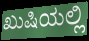
ಖುಷಿಯಲ್ಲಿ